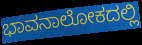
ಭಾವನಾಲೋಕದಲ್ಲಿ